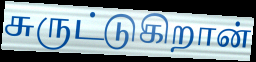
சுருட்டுகிறான்